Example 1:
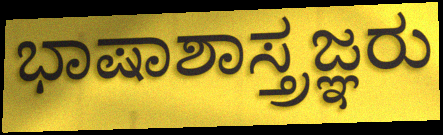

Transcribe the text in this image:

ಭಾಷಾಶಾಸ್ತ್ರಜ್ಞರು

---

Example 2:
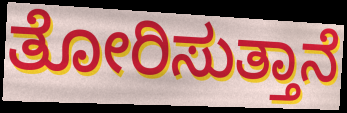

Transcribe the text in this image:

ತೋರಿಸುತ್ತಾನೆ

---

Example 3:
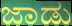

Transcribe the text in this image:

ಜಾಡು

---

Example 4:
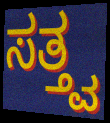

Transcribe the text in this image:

ಸತ್ತ್ವ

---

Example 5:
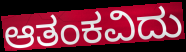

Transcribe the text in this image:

ಆತಂಕವಿದು